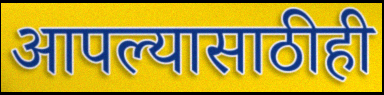
आपल्यासाठीही